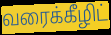
வரைக்கீழிட்